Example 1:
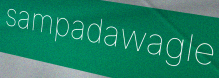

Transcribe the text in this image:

sampadawagle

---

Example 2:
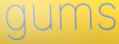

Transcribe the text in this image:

gums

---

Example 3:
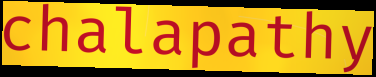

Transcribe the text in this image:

chalapathy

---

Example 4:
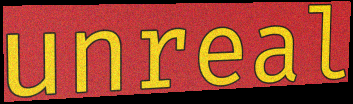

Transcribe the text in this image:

unreal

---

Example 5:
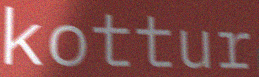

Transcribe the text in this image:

kottur